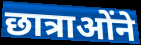
छात्राओंने